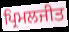
ਪ੍ਰਿਮਲਜੀਤ